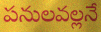
పనులవల్లనే